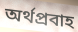
অর্থপ্রবাহ